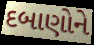
દબાણોને